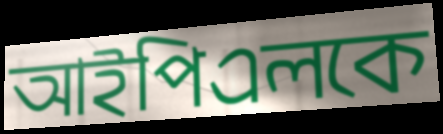
আইপিএলকে